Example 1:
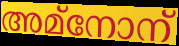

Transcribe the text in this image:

അമ്നോന്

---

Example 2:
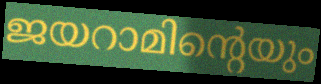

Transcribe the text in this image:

ജയറാമിന്റെയും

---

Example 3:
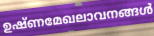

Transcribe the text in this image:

ഉഷ്ണമേഖലാവനങ്ങൾ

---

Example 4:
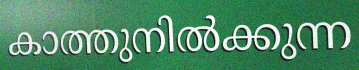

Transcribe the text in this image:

കാത്തുനിൽക്കുന്ന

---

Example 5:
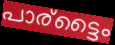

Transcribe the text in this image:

പാര്ട്ടൈം